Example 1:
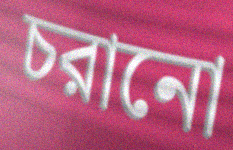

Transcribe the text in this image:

চরানো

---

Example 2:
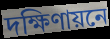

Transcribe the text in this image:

দক্ষিণায়নে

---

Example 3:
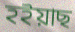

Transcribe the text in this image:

হইয়াছ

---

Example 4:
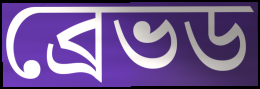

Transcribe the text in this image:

ব্রেভড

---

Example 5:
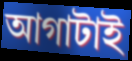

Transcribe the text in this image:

আগাটাই